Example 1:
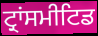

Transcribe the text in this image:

ਟ੍ਰਾਂਸਮੀਟਿਡ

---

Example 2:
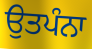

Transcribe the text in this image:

ਉਤਪੰਨਾ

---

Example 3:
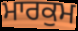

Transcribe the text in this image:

ਮਾਰਕੁਮ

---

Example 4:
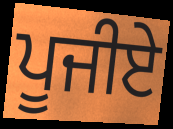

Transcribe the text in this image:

ਪੂਜੀਏ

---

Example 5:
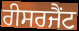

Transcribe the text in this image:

ਰੀਸਰਜੈਂਟ